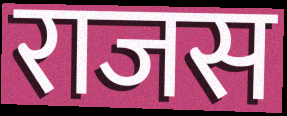
राजस